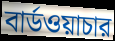
বার্ডওয়াচার